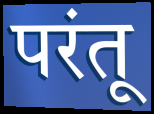
परंतू